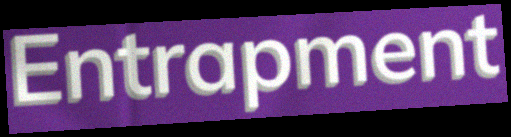
Entrapment